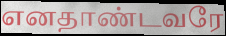
எனதாண்டவரே